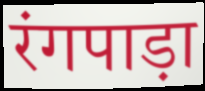
रंगपाड़ा